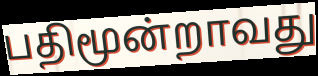
பதிமூன்றாவது